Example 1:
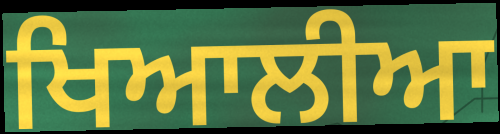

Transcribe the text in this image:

ਖਿਆਲੀਆ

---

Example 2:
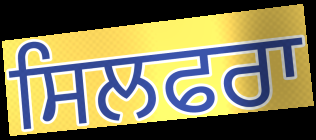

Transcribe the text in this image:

ਸਿਲਫਰਾ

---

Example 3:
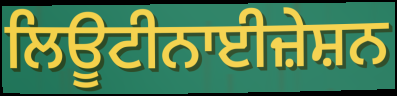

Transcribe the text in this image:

ਲਿਊਟੀਨਾਈਜ਼ੇਸ਼ਨ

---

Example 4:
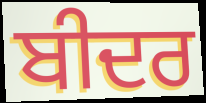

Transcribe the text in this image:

ਬੀਦਰ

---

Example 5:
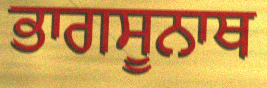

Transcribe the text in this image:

ਭਾਗਸੂਨਾਥ